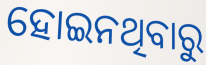
ହୋଇନଥିବାରୁ